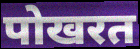
पोखरत